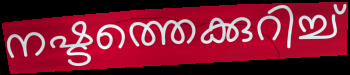
നഷ്ടത്തെക്കുറിച്ച്